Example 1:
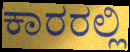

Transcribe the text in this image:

ಕಾರರಲ್ಲಿ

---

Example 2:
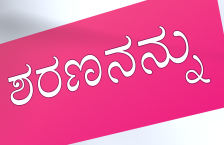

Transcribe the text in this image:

ಶರಣನನ್ನು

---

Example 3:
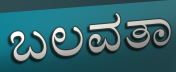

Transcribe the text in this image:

ಬಲವತಾ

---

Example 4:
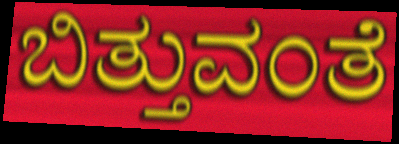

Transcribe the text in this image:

ಬಿತ್ತುವಂತೆ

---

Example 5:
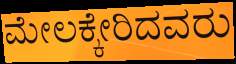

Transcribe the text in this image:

ಮೇಲಕ್ಕೇರಿದವರು